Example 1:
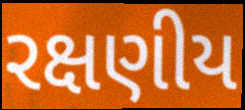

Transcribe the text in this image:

રક્ષણીય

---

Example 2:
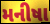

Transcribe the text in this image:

મનીષા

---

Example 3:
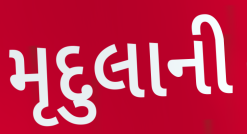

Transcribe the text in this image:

મૃદુલાની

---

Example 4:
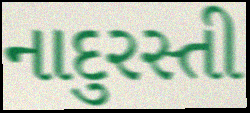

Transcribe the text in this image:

નાદુરસ્તી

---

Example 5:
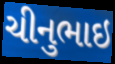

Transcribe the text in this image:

ચીનુભાઇ